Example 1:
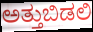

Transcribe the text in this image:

ಅತ್ತುಬಿಡಲಿ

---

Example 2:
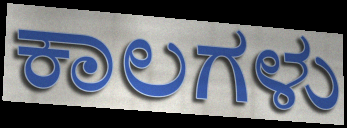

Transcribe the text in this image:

ಕಾಲಗಳು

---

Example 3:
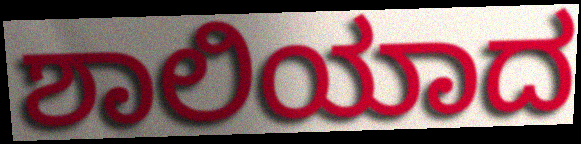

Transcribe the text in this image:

ಶಾಲಿಯಾದ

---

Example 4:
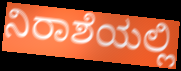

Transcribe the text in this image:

ನಿರಾಶೆಯಲ್ಲಿ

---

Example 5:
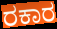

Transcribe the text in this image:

ರಕಾರ